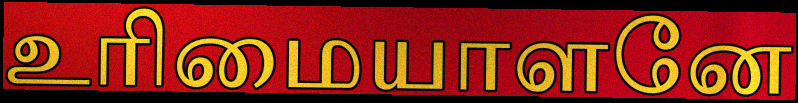
உரிமையாளனே